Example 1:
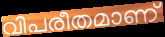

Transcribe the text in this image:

വിപരീതമാണ്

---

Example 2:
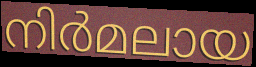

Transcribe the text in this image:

നിർമലായ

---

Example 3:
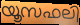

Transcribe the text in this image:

യൂസഫലി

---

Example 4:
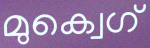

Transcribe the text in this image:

മുക്വെഗ്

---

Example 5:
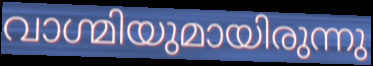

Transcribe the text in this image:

വാഗ്മിയുമായിരുന്നു